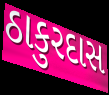
ઠાકુરદાસ